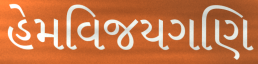
હેમવિજયગણિ